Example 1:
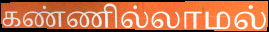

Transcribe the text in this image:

கண்ணில்லாமல்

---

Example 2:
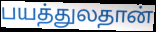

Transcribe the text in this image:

பயத்துலதான்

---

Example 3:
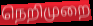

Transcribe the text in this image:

நெறிமுறை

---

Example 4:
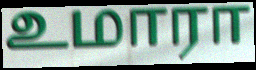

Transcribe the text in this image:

உமாரா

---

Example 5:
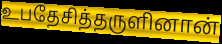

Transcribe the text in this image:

உபதேசித்தருளினான்